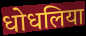
धोधलिया